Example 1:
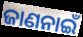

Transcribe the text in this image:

ଜାଣନାଇଁ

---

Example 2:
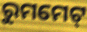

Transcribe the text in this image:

ରୁମମେଟ୍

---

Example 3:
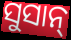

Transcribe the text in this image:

ସୁସାନ୍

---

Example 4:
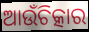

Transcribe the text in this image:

ଆଉଁଚିତ୍କାର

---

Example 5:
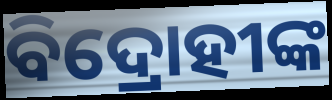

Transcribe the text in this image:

ବିଦ୍ରୋହୀଙ୍କ